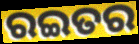
ରଇତର